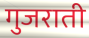
गुजराती